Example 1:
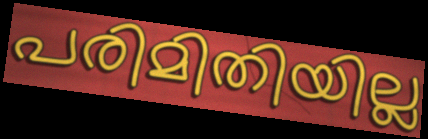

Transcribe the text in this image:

പരിമിതിയില്ല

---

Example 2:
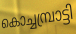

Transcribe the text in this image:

കൊച്ചമ്പ്രാട്ടി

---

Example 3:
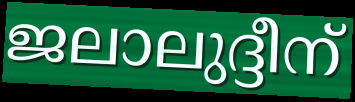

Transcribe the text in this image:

ജലാലുദ്ദീന്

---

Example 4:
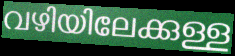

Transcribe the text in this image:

വഴിയിലേക്കുള്ള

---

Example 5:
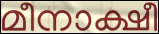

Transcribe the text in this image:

മീനാക്ഷീ